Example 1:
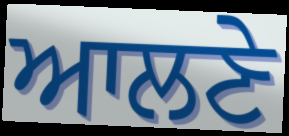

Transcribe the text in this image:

ਆਲਣੇ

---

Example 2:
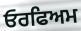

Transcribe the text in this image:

ਓਰਫਿਅਮ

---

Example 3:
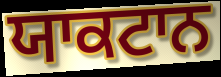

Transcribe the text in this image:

ਯਾਕਟਾਨ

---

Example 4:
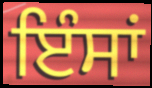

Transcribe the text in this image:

ਇੰਸਾਂ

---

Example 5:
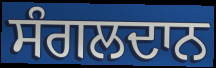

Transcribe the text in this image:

ਸੰਗਲਦਾਨ